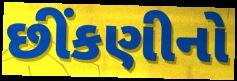
છીંકણીનો